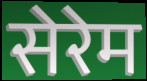
सेरेम